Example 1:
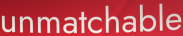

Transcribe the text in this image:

unmatchable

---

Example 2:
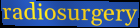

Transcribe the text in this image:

radiosurgery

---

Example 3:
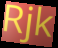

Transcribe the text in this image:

Rjk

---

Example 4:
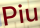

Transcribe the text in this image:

Piu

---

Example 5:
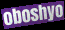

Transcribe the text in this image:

oboshyo